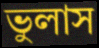
ভুলাস